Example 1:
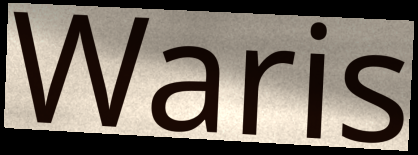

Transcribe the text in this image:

Waris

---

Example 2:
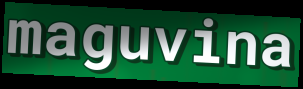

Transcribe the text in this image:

maguvina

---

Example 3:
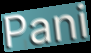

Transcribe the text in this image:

Pani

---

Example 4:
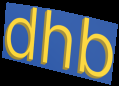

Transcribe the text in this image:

dhb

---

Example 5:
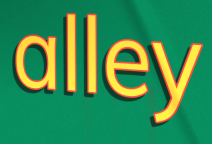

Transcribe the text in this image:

alley